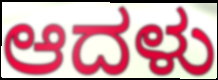
ಆದಳು